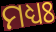
ମଧ୍ୟଃ